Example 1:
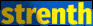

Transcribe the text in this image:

strenth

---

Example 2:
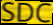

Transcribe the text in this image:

SDC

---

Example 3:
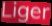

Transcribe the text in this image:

Liger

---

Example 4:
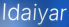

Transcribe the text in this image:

Idaiyar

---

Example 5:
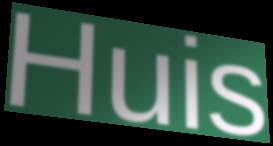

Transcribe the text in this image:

Huis